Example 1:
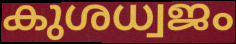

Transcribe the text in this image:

കുശധ്വജം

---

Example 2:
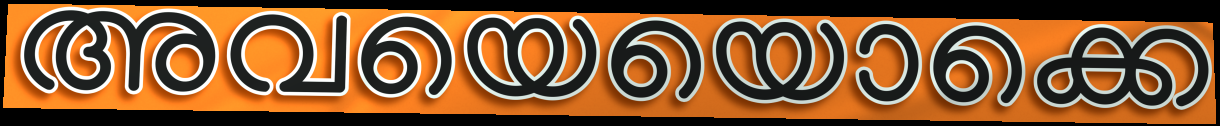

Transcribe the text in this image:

അവയെയൊക്കെ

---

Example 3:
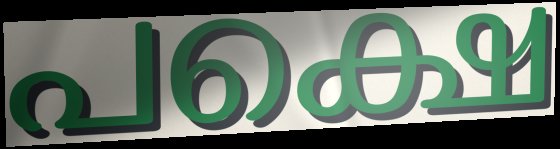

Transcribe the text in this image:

പക്ഷെ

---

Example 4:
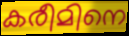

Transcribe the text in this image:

കരീമിനെ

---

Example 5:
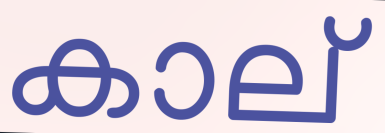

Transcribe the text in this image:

കാല്